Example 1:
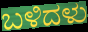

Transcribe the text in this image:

ಬಳಿದಳು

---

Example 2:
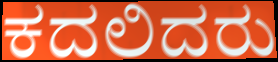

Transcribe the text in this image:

ಕದಲಿದರು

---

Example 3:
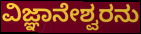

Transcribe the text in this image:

ವಿಜ್ಞಾನೇಶ್ವರನು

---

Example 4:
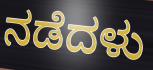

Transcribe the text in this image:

ನಡೆದಳು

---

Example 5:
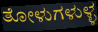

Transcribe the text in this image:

ತೋಳುಗಳುಳ್ಳ